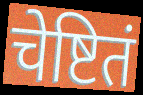
चेष्टितं